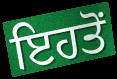
ਇਹਤੋਂ